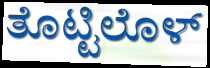
ತೊಟ್ಟಿಲೊಳ್